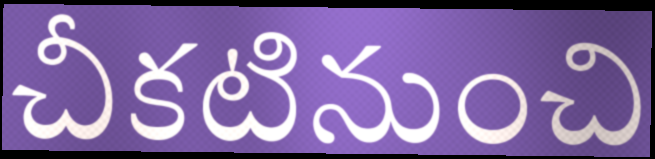
చీకటినుంచి